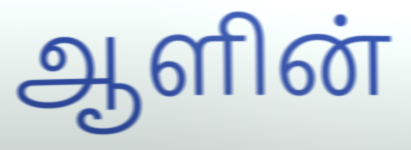
ஆளின்